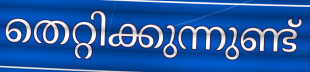
തെറ്റിക്കുന്നുണ്ട്